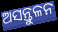
ଅସନ୍ତୁଳନ